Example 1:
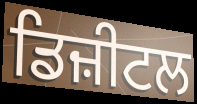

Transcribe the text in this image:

ਡਿਜ਼ੀਟਲ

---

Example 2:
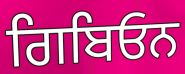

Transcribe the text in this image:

ਗਿਬਿਓਨ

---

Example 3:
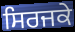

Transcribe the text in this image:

ਸਿਰਜਕੇ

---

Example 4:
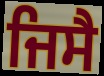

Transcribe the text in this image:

ਜਿਸੈ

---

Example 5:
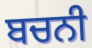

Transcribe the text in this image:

ਬਚਨੀ